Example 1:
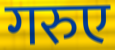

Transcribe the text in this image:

गरुए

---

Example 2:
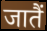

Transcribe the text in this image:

जातैं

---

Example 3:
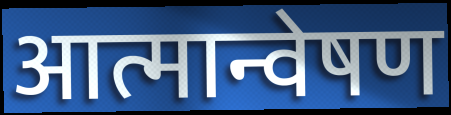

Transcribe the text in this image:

आत्मान्वेषण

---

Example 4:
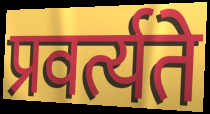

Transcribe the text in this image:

प्रवर्त्यते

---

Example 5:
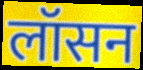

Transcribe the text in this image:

लॉसन